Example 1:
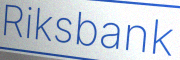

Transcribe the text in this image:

Riksbank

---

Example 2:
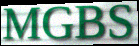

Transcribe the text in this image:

MGBS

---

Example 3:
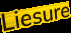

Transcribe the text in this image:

Liesure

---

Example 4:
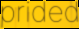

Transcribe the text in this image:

prided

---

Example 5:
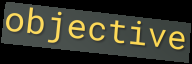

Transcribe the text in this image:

objective